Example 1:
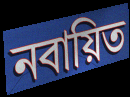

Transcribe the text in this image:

নবায়িত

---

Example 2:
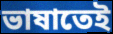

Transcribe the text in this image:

ভাষাতেই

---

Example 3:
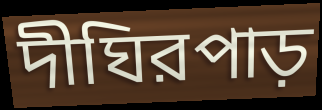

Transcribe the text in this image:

দীঘিরপাড়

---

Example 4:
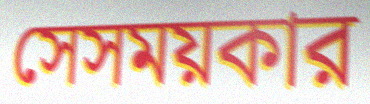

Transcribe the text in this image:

সেসময়কার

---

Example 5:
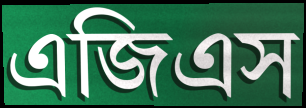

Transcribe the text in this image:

এজিএস